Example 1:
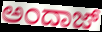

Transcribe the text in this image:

ಅಂದಾಜ್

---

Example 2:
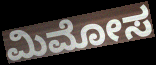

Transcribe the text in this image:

ಮಿಮೋಸ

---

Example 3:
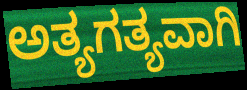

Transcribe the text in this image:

ಅತ್ಯಗತ್ಯವಾಗಿ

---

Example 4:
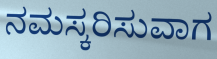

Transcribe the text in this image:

ನಮಸ್ಕರಿಸುವಾಗ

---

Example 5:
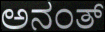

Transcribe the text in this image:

ಅನಂತ್